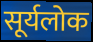
सूर्यलोक